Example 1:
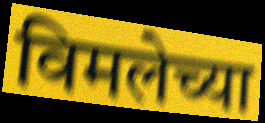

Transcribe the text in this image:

विमलेच्या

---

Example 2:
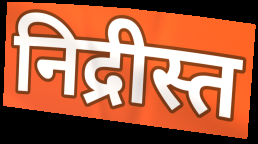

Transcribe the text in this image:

निद्रीस्त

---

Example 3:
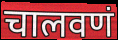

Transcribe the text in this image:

चालवणं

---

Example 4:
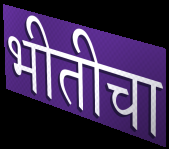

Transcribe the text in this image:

भीतीचा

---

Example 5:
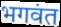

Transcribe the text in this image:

भगवंत